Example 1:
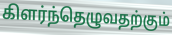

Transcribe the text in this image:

கிளர்ந்தெழுவதற்கும்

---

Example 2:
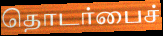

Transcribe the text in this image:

தொடர்பைச்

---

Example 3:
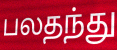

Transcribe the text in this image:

பலதந்து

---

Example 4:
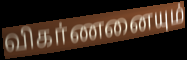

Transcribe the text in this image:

விகர்ணனையும்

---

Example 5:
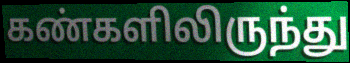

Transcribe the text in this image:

கண்களிலிருந்து